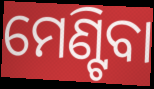
ମେଣ୍ଟିବା